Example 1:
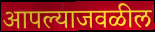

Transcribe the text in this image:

आपल्याजवळील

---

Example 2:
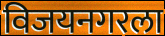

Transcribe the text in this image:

विजयनगरला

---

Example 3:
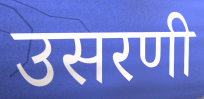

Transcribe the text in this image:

उसरणी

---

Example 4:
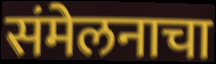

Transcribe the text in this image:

संमेलनाचा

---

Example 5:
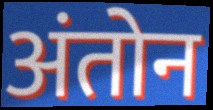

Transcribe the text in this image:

अंतोन